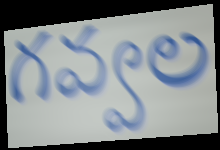
గవ్వల